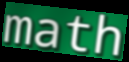
math